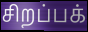
சிறப்பக்